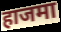
हाजमा